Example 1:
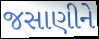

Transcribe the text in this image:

જસાણીને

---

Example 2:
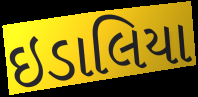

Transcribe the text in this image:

ઇડાલિયા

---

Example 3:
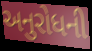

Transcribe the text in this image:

અનુરોધની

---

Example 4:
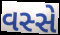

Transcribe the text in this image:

વસ્સે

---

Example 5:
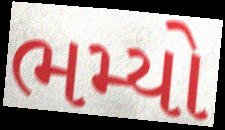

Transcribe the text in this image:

ભમ્યો